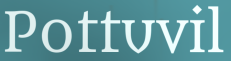
Pottuvil